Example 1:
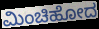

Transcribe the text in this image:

ಮಿಂಚಿಹೋದ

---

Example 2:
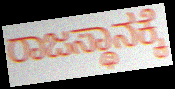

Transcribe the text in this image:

ರಾಜಸ್ಥಾನಕ್ಕೆ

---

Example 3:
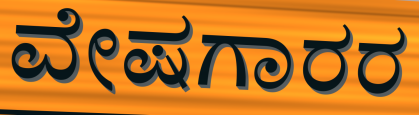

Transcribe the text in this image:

ವೇಷಗಾರರ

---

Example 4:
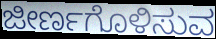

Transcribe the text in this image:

ಜೀರ್ಣಗೊಳಿಸುವ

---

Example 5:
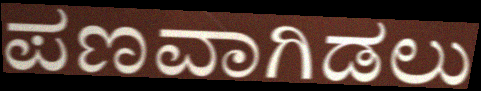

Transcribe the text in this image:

ಪಣವಾಗಿಡಲು